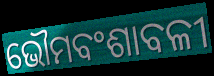
ଭୌମବଂଶାବଳୀ